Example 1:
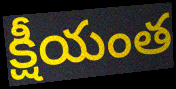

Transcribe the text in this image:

క్షీయంత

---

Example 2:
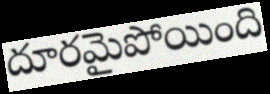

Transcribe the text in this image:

దూరమైపోయింది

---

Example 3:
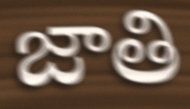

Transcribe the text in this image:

జాతి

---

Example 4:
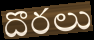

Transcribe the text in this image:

దొరలు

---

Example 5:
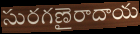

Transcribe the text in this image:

సురగణైరాదాయ